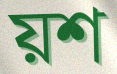
য়শ